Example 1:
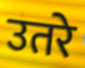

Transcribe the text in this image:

उतरे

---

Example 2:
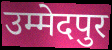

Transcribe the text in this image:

उम्मेदपुर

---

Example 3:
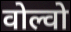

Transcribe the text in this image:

वोल्वो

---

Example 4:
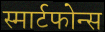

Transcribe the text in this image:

स्मार्टफोन्स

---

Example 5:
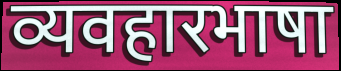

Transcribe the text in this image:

व्यवहारभाषा